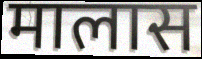
मालास